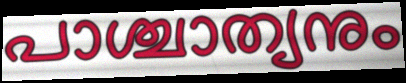
പാശ്ചാത്യനും